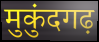
मुकुंदगढ़